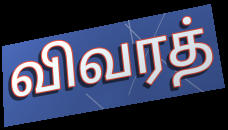
விவரத்